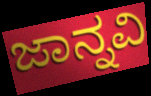
ಜಾನ್ನವಿ